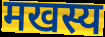
मखस्य